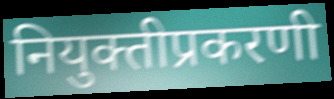
नियुक्तीप्रकरणी